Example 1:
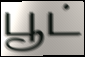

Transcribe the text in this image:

பூட்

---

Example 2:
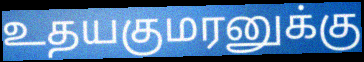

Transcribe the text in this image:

உதயகுமரனுக்கு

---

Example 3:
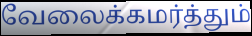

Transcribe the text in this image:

வேலைக்கமர்த்தும்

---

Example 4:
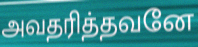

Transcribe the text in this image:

அவதரித்தவனே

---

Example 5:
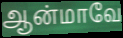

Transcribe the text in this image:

ஆன்மாவே